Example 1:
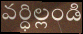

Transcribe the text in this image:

వర్ధిల్లండి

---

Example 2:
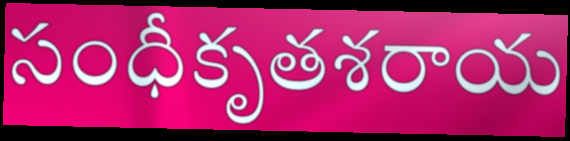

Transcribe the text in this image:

సంధీకృతశరాయ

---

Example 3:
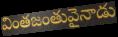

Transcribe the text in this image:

వింతజంతువైనాడు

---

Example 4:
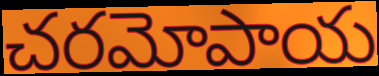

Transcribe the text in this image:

చరమోపాయ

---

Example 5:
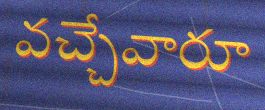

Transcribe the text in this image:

వచ్చేవారూ